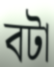
বটা